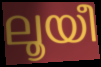
ലൂയീ